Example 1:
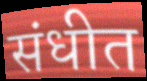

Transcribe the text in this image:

संधीत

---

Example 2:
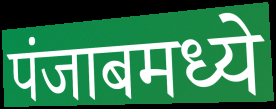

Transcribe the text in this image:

पंजाबमध्ये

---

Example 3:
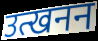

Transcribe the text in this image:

उत्खनन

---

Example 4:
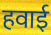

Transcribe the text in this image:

हवाई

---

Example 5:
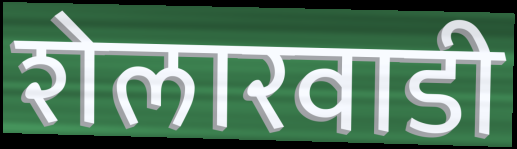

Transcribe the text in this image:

शेलारवाडी